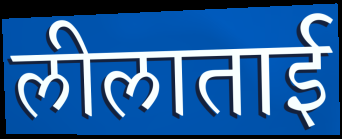
लीलाताई